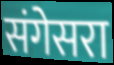
संगेसरा